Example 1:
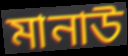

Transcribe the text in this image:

মানাউ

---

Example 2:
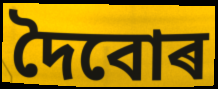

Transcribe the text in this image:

দৈবোৰ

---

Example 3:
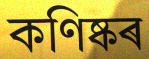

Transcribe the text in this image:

কণিষ্কৰ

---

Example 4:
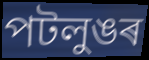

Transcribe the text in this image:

পটলুঙৰ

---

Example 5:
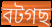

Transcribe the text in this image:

বটগছ